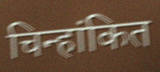
चिन्हांकित